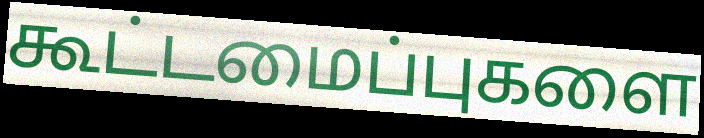
கூட்டமைப்புகளை